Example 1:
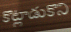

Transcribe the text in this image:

కొట్లాడుకొని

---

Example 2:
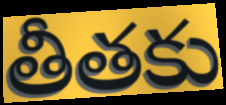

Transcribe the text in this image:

తీతకు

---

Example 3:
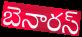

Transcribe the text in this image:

బెనారస్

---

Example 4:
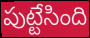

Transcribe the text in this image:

పుట్టేసింది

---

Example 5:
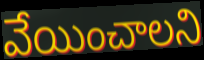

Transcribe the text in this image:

వేయించాలని